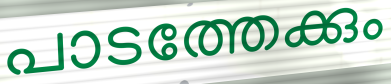
പാടത്തേക്കും